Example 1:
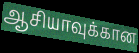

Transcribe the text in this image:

ஆசியாவுக்கான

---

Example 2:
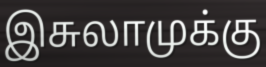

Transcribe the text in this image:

இசுலாமுக்கு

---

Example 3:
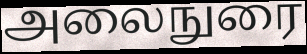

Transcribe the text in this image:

அலைநுரை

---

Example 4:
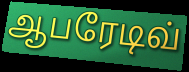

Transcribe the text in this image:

ஆபரேடிவ்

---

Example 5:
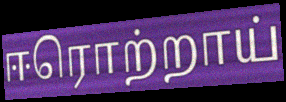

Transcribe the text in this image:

ஈரொற்றாய்